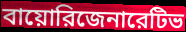
বায়োরিজেনারেটিভ